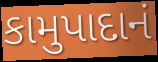
કામુપાદાનં